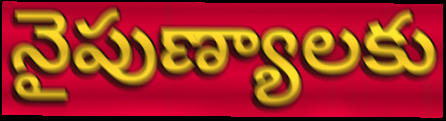
నైపుణ్యాలకు